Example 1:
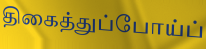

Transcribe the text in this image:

திகைத்துப்போய்ப்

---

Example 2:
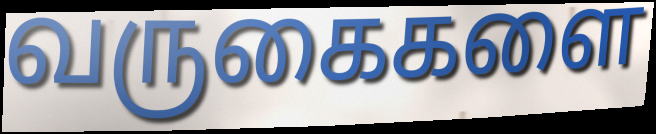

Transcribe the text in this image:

வருகைகளை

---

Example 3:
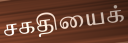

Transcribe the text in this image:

சகதியைக்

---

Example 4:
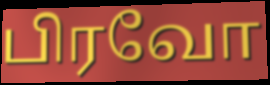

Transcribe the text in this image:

பிரவோ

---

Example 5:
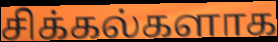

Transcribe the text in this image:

சிக்கல்களாக